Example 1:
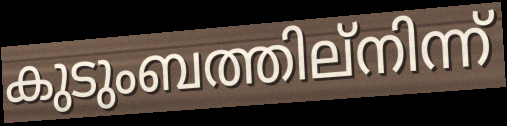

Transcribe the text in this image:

കുടുംബത്തില്നിന്ന്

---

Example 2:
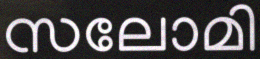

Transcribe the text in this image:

സലോമി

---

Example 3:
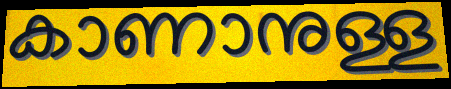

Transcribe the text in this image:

കാണാനുള്ള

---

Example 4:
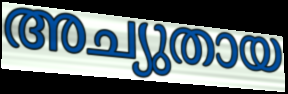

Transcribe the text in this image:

അച്യുതായ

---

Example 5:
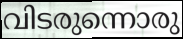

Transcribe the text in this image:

വിടരുന്നൊരു